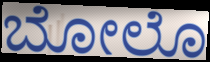
ಬೋಲೊ